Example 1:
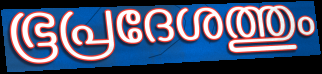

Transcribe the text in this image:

ഭൂപ്രദേശത്തും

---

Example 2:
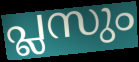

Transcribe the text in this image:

പ്ലസും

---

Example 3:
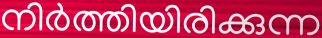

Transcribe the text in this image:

നിർത്തിയിരിക്കുന്ന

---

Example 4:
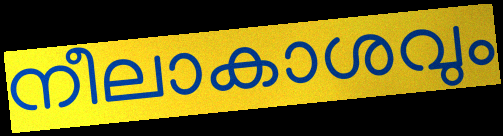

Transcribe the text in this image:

നീലാകാശവും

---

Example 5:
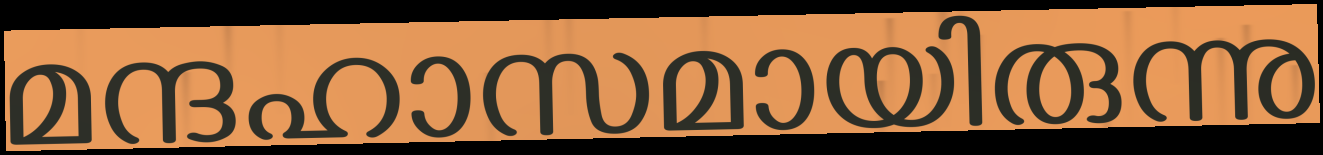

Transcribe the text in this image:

മന്ദഹാസമായിരുന്നു